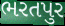
ભરતપુર